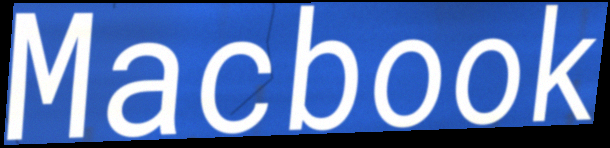
Macbook